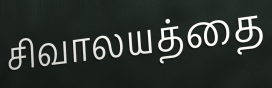
சிவாலயத்தை